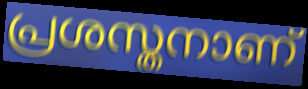
പ്രശസ്തനാണ്